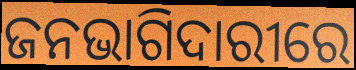
ଜନଭାଗିଦାରୀରେ